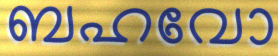
ബഹവോ